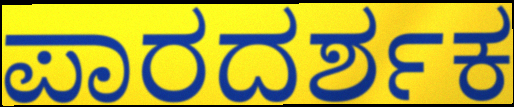
ಪಾರದರ್ಶಕ